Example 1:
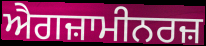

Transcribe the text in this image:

ਐਗਜ਼ਾਮੀਨਰਜ਼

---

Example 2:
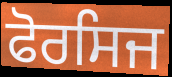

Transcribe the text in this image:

ਫੋਰਸਿਜ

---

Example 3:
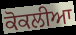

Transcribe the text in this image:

ਕੋਕਲੀਆ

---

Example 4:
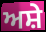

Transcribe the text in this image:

ਅਸ਼ੇ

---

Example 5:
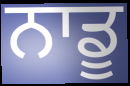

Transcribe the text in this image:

ਨਾਡੂ